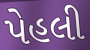
પેહલી